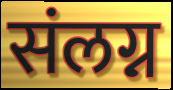
संलग्न